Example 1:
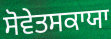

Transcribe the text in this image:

ਸੋਵੇਤਸਕਾਯਾ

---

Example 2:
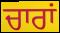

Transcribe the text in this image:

ਚਾਰਾਂ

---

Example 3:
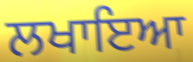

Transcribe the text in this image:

ਲਖਾਇਆ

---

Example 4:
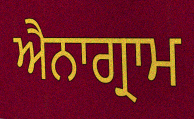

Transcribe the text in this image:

ਐਨਾਗ੍ਰਾਮ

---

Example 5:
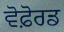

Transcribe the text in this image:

ਵੋਫ਼ੋਰਡ